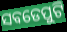
ସବଡେପୁଟି